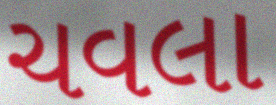
ચવલા